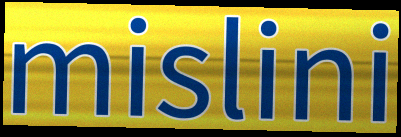
mislini